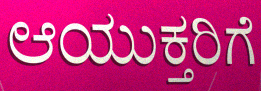
ಆಯುಕ್ತರಿಗೆ